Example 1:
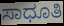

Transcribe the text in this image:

ಸಾಧೂತಿ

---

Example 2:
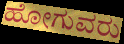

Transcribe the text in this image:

ಹೋಗುವರು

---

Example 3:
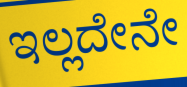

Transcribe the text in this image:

ಇಲ್ಲದೇನೇ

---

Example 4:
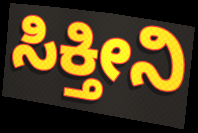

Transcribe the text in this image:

ಸಿಕ್ತೀನಿ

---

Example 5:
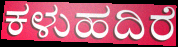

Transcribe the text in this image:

ಕಳುಹದಿರೆ